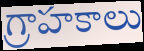
గ్రాహకాలు